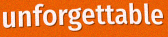
unforgettable